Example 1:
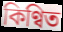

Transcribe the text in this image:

কিণ্বিত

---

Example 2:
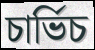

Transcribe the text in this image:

চাৰ্ভিচ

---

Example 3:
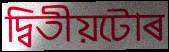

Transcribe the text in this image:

দ্বিতীয়টোৰ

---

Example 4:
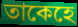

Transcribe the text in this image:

তাকেহে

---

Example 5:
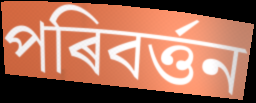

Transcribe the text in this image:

পৰিবৰ্ত্তন